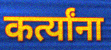
कर्त्यांना